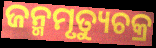
ଜନ୍ମମୃତ୍ୟୁଚକ୍ର